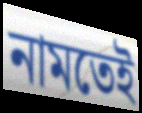
নামতেই